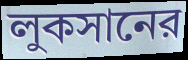
লুকসানের